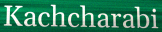
Kachcharabi